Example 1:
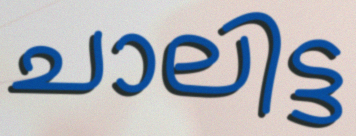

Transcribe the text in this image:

ചാലിട്ട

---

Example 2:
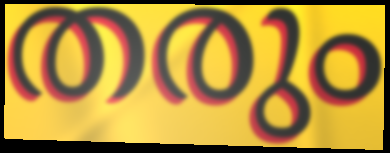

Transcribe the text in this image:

തരും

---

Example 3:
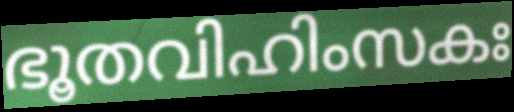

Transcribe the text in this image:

ഭൂതവിഹിംസകഃ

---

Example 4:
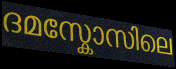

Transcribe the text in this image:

ദമസ്കോസിലെ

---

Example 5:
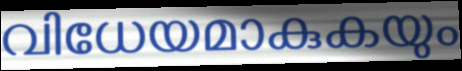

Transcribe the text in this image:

വിധേയമാകുകയും